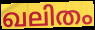
ഖലിതം